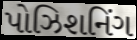
પોઝિશનિંગ